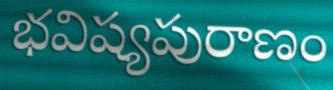
భవిష్యపురాణం